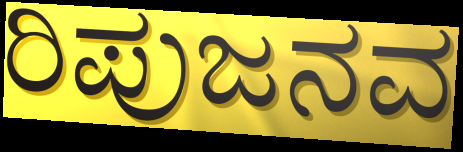
ರಿಪುಜನವ